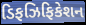
ડિફઝિફિકેશન